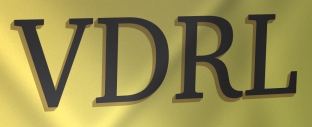
VDRL